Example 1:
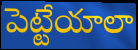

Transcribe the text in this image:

పెట్టేయాలా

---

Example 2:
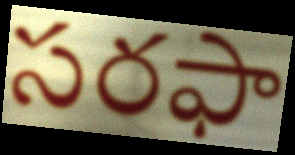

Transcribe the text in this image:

సరఫా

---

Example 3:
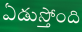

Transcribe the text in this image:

ఏడుస్తోంది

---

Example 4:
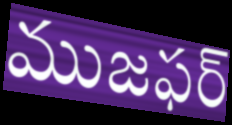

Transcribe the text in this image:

ముజఫర్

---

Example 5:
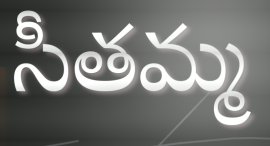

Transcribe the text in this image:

సీతమ్మ